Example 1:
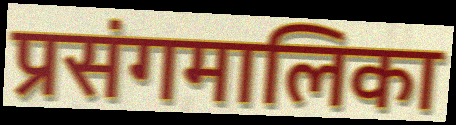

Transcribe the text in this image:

प्रसंगमालिका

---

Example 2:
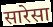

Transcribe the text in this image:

सारेसा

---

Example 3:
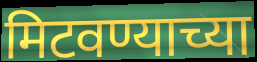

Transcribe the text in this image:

मिटवण्याच्या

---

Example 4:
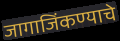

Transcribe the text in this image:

जागाजिंकण्याचे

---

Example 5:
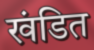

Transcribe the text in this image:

खंडित